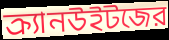
ক্র্যানউইটজের